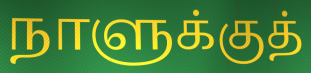
நாளுக்குத்